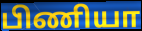
பிணியா